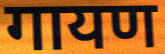
गायण